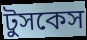
টুসকেস